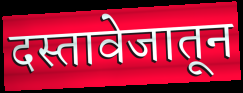
दस्तावेजातून